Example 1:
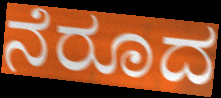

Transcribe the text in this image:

ನೆರೂದ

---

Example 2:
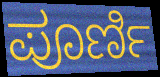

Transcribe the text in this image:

ಪೂರ್ಣಿ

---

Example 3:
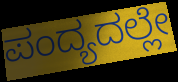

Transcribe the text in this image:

ಪಂದ್ಯದಲ್ಲೇ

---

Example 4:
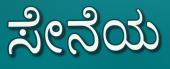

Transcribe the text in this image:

ಸೇನೆಯ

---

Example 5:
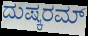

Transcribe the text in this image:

ದುಷ್ಕರಮ್